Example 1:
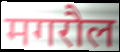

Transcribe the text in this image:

मगरौल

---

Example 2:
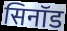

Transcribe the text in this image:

सिनॉड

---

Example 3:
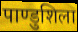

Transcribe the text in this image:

पाण्डुशिला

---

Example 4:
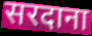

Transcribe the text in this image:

सरदाना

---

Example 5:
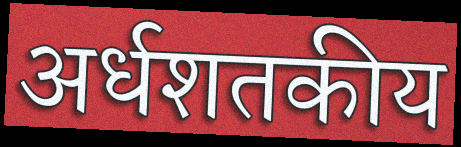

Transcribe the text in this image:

अर्धशतकीय